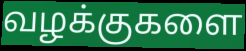
வழக்குகளை